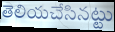
తెలియచేసినట్టు